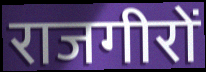
राजगीरों